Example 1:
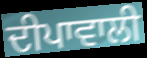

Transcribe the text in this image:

ਦੀਪਾਵਾਲੀ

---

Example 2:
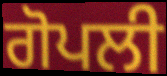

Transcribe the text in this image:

ਗੋਪਲੀ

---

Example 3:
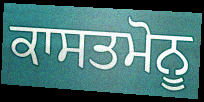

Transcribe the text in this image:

ਕਾਸਤਮੋਨੂ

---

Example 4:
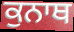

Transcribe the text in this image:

ਕੁਨਾਥ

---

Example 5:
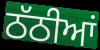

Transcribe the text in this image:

ਠੱਠੀਆਂ